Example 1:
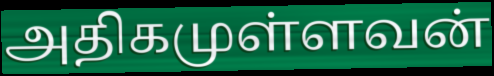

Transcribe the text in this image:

அதிகமுள்ளவன்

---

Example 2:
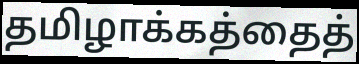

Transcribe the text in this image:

தமிழாக்கத்தைத்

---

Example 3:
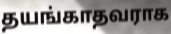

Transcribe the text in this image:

தயங்காதவராக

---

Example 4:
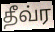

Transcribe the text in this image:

தீவ்ர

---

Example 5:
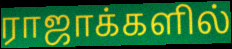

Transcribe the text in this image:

ராஜாக்களில்